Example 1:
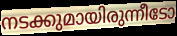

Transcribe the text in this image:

നടക്കുമായിരുന്നീടോ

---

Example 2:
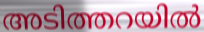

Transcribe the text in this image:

അടിത്തറയിൽ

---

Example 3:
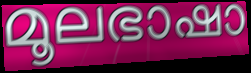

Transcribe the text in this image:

മൂലഭാഷാ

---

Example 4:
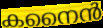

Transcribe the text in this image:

കനൈൻ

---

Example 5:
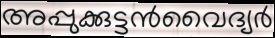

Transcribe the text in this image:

അപ്പുക്കുട്ടൻവൈദ്യർ